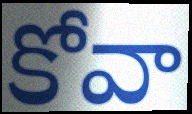
కోవా